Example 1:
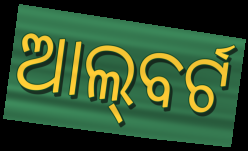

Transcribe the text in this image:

ଆଲ୍‌ବର୍ଟ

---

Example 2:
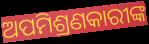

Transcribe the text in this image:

ଅପମିଶ୍ରଣକାରୀଙ୍କ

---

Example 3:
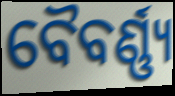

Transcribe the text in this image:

ବୈବର୍ଣ୍ଣ୍ୟ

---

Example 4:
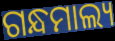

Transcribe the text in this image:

ଗନ୍ଧମାଲ୍ୟ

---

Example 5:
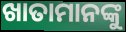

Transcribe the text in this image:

ଖାତାମାନଙ୍କୁ